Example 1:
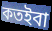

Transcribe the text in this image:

কতইবা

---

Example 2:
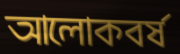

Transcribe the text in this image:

আলোকবর্ষ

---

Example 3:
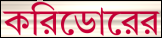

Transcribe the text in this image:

করিডোরের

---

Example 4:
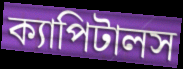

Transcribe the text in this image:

ক্যাপিটালস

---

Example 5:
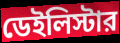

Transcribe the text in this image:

ডেইলিস্টার